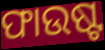
ଫାଉଷ୍ଟ